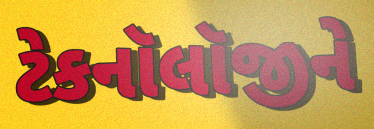
ટેકનૉલૉજીને